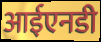
आईएनडी